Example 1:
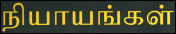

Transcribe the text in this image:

நியாயங்கள்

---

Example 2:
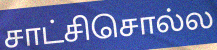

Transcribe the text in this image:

சாட்சிசொல்ல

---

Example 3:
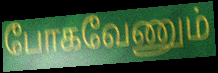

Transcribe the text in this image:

போகவேணும்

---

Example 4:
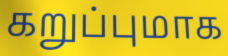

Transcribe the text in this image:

கறுப்புமாக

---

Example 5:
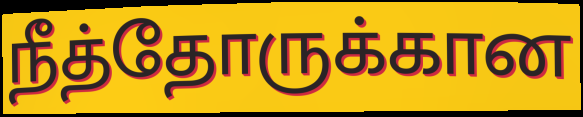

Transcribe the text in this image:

நீத்தோருக்கான